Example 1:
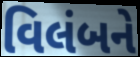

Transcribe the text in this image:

વિલંબને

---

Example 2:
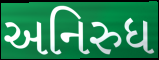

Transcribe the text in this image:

અનિરુધ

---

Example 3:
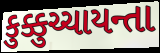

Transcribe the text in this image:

કુક્કુચ્ચાયન્તા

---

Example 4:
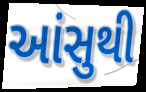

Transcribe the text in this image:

આંસુથી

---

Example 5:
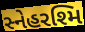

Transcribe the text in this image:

સ્નેહરશ્મિ